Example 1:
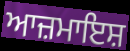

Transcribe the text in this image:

ਆਜ਼ਮਾਇਸ਼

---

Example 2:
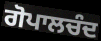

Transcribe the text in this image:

ਗੋਪਾਲਚੰਦ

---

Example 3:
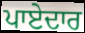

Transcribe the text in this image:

ਪਾਏਦਾਰ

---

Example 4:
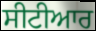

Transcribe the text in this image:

ਸੀਟੀਆਰ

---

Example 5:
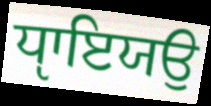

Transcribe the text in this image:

ਧੵਾਇਯਉ